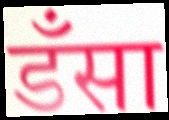
डँसा